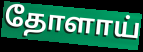
தோளாய்